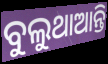
ବୁଲୁଥାଆନ୍ତି